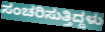
ಸಂಚರಿಸುತ್ತಿದ್ದಳು